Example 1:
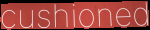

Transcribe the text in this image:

cushioned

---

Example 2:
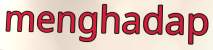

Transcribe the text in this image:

menghadap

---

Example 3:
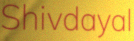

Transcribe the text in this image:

Shivdayal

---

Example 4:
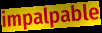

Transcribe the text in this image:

impalpable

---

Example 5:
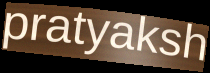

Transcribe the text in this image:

pratyaksh